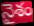
నైశం